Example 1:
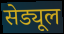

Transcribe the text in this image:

सेड्यूल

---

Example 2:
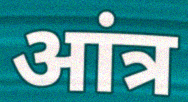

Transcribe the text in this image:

आंत्र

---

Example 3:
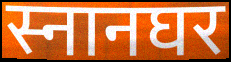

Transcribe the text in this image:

स्नानघर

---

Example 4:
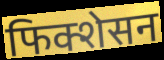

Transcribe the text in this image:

फिक्शेसन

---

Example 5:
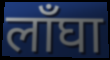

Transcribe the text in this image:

लाँघा